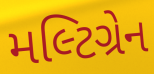
મલ્ટિગ્રેન